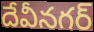
దేవీనగర్